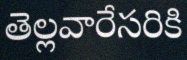
తెల్లవారేసరికి